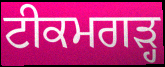
ਟੀਕਮਗੜ੍ਹ